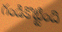
గండికొట్టింది